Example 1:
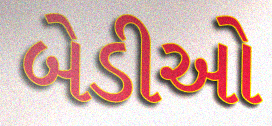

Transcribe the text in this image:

બેડીઓ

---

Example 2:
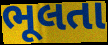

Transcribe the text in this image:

ભૂલતા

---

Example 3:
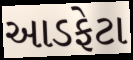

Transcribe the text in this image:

આડફેટા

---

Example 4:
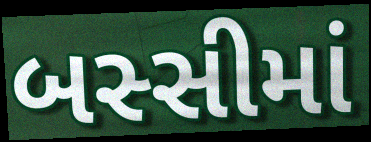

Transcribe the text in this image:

બસ્સીમાં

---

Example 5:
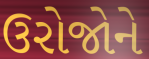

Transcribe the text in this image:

ઉરોજોને